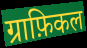
ग्राफ़िकल